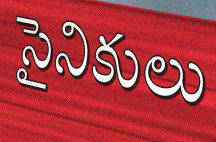
సైనికులు